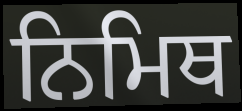
ਨਿਮਿਥ